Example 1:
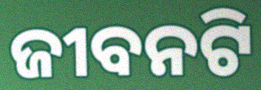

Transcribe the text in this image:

ଜୀବନଟି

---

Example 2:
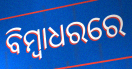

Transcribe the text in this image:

ବିମ୍ୱାଧରରେ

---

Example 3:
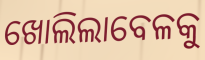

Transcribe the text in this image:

ଖୋଲିଲାବେଳକୁ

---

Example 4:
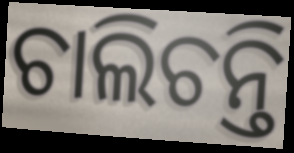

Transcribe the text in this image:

ଚାଲିଚନ୍ତି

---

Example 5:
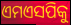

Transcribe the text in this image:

ଏମଏସପିକୁ